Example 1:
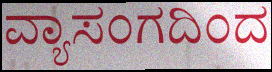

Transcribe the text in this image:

ವ್ಯಾಸಂಗದಿಂದ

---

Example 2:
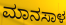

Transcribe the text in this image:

ಮಾನಸಾಳ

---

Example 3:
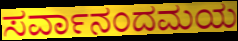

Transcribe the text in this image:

ಸರ್ವಾನಂದಮಯ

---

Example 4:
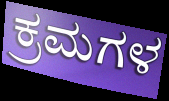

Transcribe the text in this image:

ಕ್ರಮಗಳ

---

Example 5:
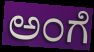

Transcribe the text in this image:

ಅಂಗೆ